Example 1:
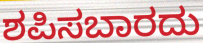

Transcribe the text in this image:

ಶಪಿಸಬಾರದು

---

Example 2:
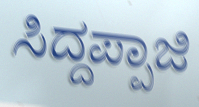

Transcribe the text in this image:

ಸಿದ್ದಪ್ಪಾಜಿ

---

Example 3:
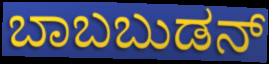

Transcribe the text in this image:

ಬಾಬಬುಡನ್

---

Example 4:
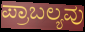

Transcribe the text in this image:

ಪ್ರಾಬಲ್ಯವು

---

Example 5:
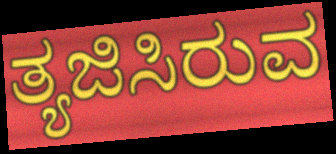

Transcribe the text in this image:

ತ್ಯಜಿಸಿರುವ